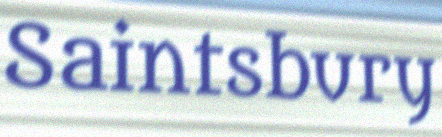
Saintsbury